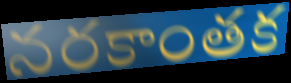
నరకాంతక